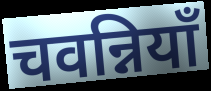
चवन्नियाँ